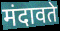
मंदावते